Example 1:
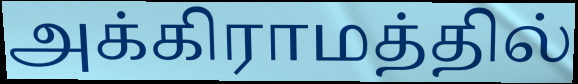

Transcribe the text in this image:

அக்கிராமத்தில்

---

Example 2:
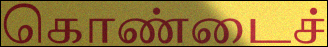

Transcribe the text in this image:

கொண்டைச்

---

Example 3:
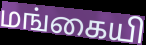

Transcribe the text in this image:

மங்கையி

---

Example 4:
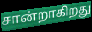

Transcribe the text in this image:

சான்றாகிறது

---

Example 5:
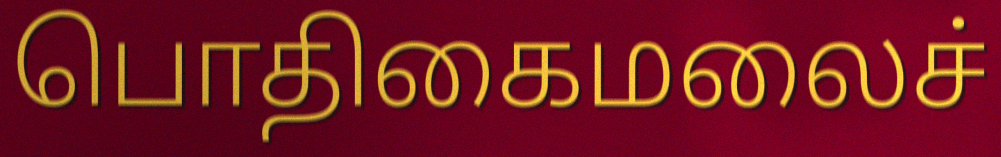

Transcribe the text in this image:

பொதிகைமலைச்